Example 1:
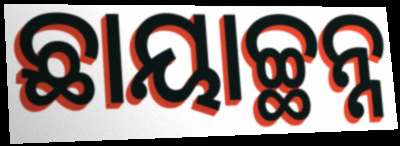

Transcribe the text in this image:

ଛାୟାଚ୍ଛନ୍ନ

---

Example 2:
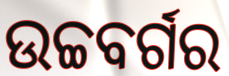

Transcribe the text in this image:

ଉଚ୍ଚବର୍ଗର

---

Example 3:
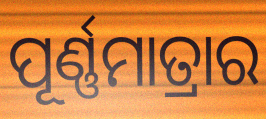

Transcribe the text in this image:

ପୂର୍ଣ୍ଣମାତ୍ରାର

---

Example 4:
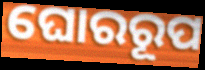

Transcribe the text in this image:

ଘୋରରୂପ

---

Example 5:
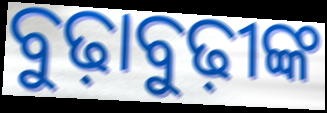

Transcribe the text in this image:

ବୁଢ଼ାବୁଢ଼ୀଙ୍କ